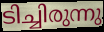
ടിച്ചിരുന്നു